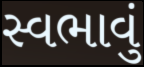
સ્વભાવું